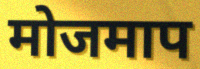
मोजमाप